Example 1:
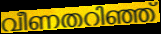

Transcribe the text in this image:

വീണതറിഞ്ഞ്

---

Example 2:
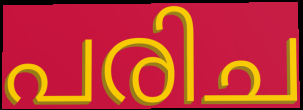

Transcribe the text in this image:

പരിച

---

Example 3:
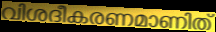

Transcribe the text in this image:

വിശദീകരണമാണിത്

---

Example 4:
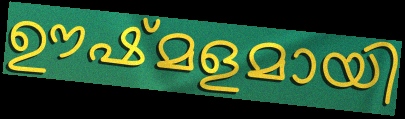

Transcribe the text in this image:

ഊഷ്മളമായി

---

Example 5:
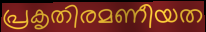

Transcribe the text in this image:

പ്രകൃതിരമണീയത